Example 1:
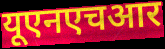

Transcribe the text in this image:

यूएनएचआर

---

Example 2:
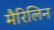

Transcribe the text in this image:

मैरिलिन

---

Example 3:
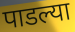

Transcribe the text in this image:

पाडल्या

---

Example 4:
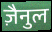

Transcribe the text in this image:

ज़ैनुल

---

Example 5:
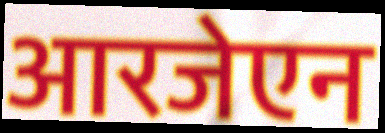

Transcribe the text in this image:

आरजेएन